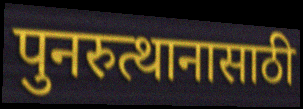
पुनरुत्थानासाठी